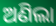
ଅଣିଲା